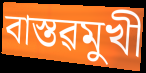
বাস্তৱমুখী